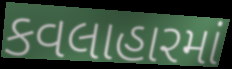
કવલાહારમાં